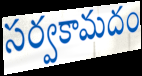
సర్వకామదం